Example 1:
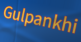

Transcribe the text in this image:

Gulpankhi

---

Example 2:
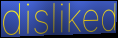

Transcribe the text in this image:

disliked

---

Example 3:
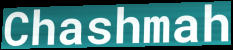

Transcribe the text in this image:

Chashmah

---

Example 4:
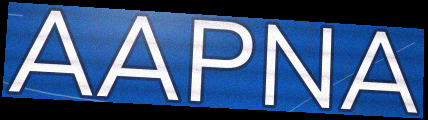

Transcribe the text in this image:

AAPNA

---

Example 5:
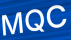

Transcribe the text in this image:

MQC